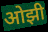
ओझी